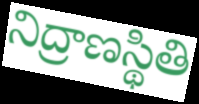
నిద్రాణస్థితి